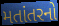
મતાંતરનો